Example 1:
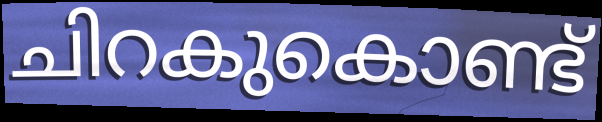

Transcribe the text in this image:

ചിറകുകൊണ്ട്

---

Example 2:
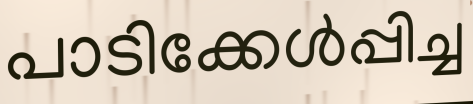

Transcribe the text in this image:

പാടിക്കേൾപ്പിച്ച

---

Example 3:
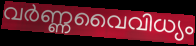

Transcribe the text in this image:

വർണ്ണവൈവിധ്യം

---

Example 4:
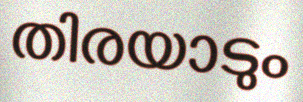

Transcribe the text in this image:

തിരയാടും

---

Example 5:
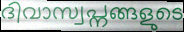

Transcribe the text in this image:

ദിവാസ്വപ്നങ്ങളുടെ